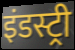
इंडस्ट्री